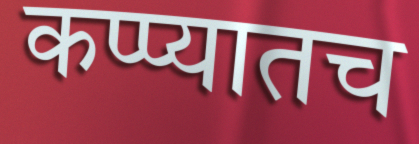
कप्प्यातच